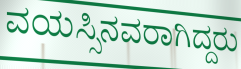
ವಯಸ್ಸಿನವರಾಗಿದ್ದರು